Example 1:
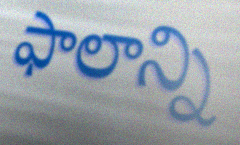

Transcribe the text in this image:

ఫాలాన్ని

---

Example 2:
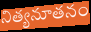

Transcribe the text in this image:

నిత్యనూతనం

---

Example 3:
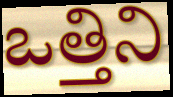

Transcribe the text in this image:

ఒత్తిని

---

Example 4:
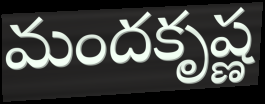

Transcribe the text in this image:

మందకృష్ణ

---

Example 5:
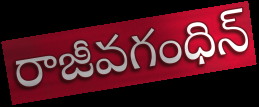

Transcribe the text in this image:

రాజీవగంధిన్